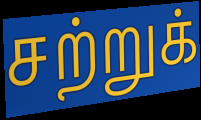
சற்றுக்